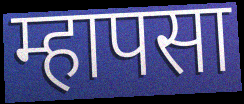
म्हापसा